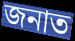
জনাত